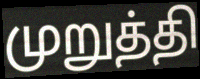
முறுத்தி